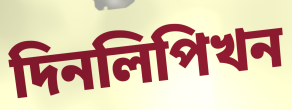
দিনলিপিখন